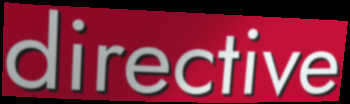
directive